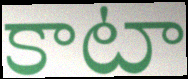
కాటా